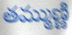
తమ్ముణ్ణి